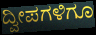
ದ್ವೀಪಗಳಿಗೂ